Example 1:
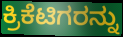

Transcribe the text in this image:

ಕ್ರಿಕೆಟಿಗರನ್ನು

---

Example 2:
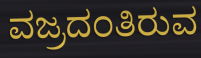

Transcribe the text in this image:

ವಜ್ರದಂತಿರುವ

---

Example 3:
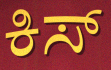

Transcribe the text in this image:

ಕಿಸ್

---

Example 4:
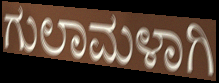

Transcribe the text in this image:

ಗುಲಾಮಳಾಗಿ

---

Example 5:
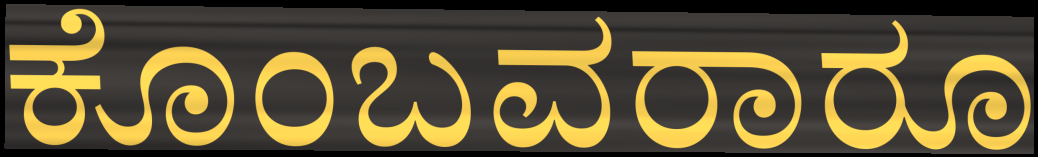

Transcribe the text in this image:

ಕೊಂಬವರಾರೂ